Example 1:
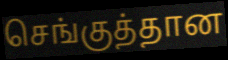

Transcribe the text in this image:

செங்குத்தான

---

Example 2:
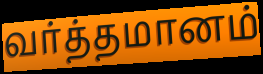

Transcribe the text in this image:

வர்த்தமானம்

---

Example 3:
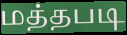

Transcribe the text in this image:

மத்தபடி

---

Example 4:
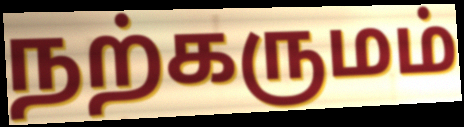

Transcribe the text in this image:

நற்கருமம்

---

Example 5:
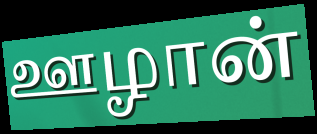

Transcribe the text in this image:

ஊழான்